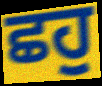
ਛਹੁ